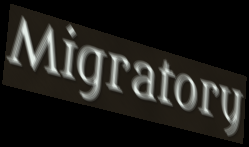
Migratory